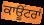
ਕਾਊਂਟਰਾਂ